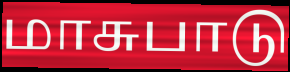
மாசுபாடு